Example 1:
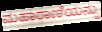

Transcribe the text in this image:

ಮಹಾರಾಣಿಯನ್ನು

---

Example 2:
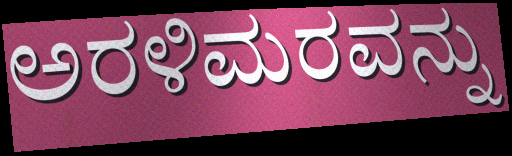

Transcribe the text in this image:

ಅರಳಿಮರವನ್ನು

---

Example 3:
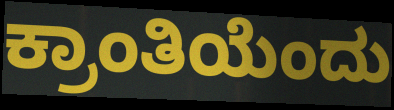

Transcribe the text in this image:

ಕ್ರಾಂತಿಯೆಂದು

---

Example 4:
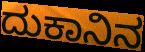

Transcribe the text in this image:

ದುಕಾನಿನ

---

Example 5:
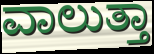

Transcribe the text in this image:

ವಾಲುತ್ತಾ